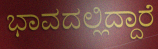
ಭಾವದಲ್ಲಿದ್ದಾರೆ